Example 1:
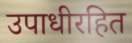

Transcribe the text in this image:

उपाधीरहित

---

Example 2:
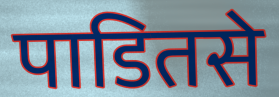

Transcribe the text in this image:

पाडितसे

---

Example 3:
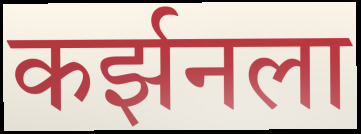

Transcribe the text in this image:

कर्झनला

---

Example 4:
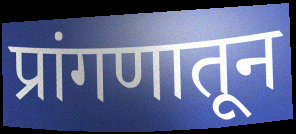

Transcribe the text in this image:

प्रांगणातून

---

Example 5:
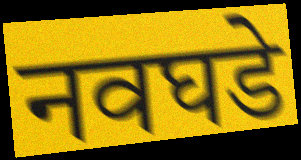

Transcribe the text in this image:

नवघडे